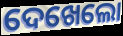
ଦେଖେଲୋ